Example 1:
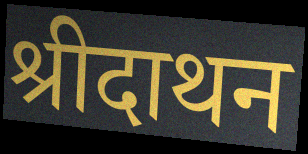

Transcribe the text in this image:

श्रीदाथन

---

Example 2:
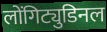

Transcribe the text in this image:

लोंगिट्युडिनल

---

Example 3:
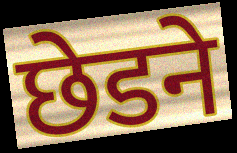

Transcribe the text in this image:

छेडने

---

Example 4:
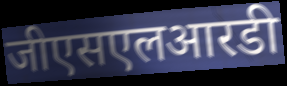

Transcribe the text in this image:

जीएसएलआरडी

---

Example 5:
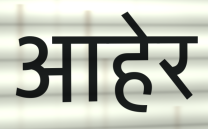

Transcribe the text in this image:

आहेर